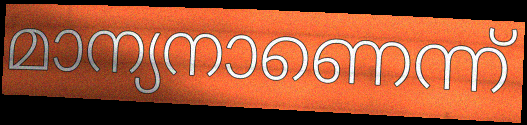
മാന്യനാണെന്ന്